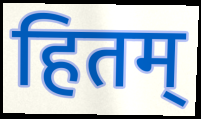
हितम्